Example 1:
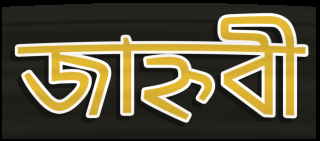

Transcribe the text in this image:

জাহ্নবী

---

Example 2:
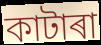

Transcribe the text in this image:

কাটাৰা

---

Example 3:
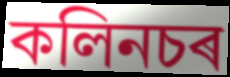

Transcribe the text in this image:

কলিনচৰ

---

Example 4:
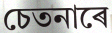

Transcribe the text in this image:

চেতনাৰে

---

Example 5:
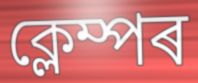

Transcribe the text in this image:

ক্লেম্পৰ